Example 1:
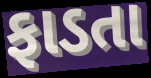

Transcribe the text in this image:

ફાડતા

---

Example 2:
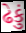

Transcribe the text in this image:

ઢેકું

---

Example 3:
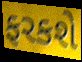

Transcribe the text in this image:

ફરકશે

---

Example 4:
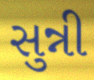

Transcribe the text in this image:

સુન્ની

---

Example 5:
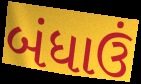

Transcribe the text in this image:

બંધાઉં